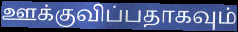
ஊக்குவிப்பதாகவும்